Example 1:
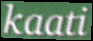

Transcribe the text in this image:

kaati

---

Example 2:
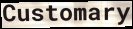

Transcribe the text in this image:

Customary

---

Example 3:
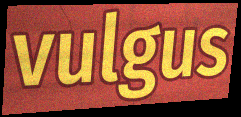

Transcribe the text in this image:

vulgus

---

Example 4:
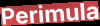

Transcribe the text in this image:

Perimula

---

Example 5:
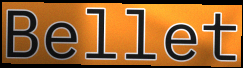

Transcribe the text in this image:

Bellet